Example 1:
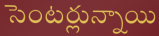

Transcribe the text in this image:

సెంటర్లున్నాయి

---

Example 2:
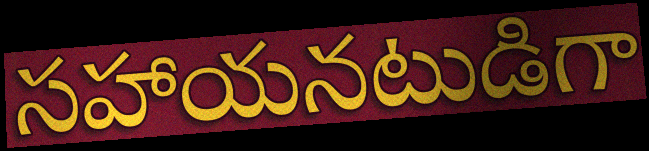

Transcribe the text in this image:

సహాయనటుడిగా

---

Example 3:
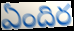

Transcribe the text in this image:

ఏందిర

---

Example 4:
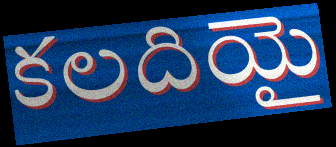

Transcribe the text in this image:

కలదియై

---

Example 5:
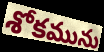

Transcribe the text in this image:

శోకమును